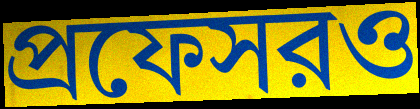
প্রফেসরও